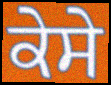
ਕੇਸੇ